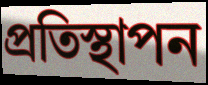
প্ৰতিস্থাপন